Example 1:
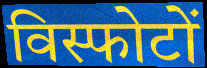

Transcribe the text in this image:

विस्फोटों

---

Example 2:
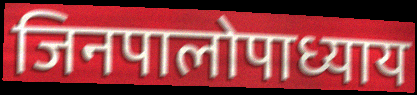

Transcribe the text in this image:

जिनपालोपाध्याय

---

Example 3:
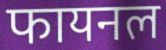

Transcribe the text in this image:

फायनल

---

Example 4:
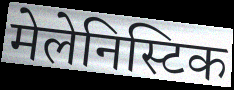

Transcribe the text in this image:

मेलेनिस्टिक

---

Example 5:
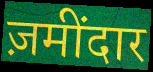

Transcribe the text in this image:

ज़मींदार